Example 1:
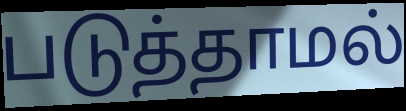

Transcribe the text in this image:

படுத்தாமல்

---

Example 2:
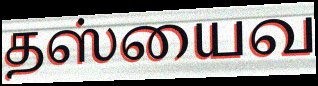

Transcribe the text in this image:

தஸ்யைவ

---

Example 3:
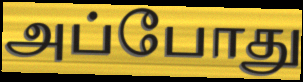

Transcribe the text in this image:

அப்போது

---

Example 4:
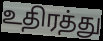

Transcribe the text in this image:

உதிரத்து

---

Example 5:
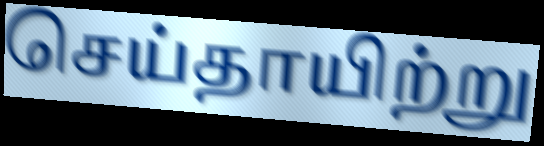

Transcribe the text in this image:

செய்தாயிற்று